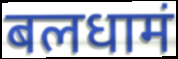
बलधामं